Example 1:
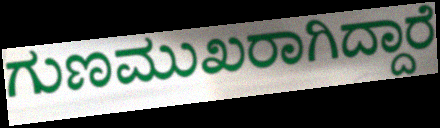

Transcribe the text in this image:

ಗುಣಮುಖರಾಗಿದ್ದಾರೆ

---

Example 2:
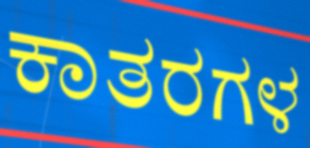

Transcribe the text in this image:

ಕಾತರಗಳ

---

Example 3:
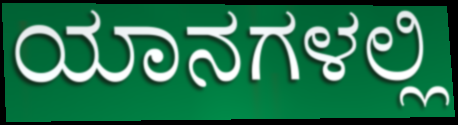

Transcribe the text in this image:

ಯಾನಗಳಲ್ಲಿ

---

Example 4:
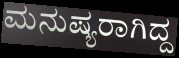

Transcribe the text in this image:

ಮನುಷ್ಯರಾಗಿದ್ದ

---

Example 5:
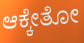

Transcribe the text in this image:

ಆಕ್ಕೇತೋ